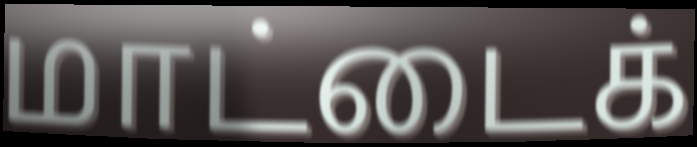
மாட்டைக்